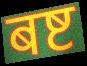
बष्ट